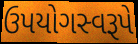
ઉપયોગસ્વરૂપે